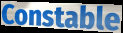
Constable